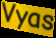
Vyas